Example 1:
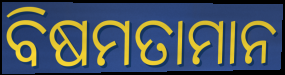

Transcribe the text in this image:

ବିଷମତାମାନ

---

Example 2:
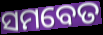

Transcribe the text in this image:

ସମବେତ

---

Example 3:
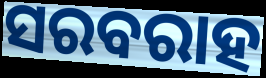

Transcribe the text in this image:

ସରବରାହ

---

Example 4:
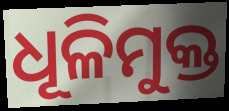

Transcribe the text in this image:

ଧୂଳିମୁକ୍ତ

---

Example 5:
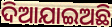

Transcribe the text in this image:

ଦିଆଯାଇଅଛି